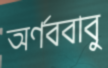
অর্ণববাবু